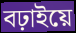
বঢ়াইয়ে